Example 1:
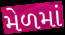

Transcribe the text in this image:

મેળમાં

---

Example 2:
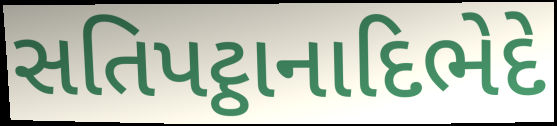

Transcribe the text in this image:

સતિપટ્ઠાનાદિભેદે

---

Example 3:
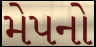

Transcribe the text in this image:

મેપનો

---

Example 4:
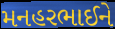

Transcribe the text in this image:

મનહરભાઈને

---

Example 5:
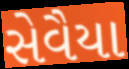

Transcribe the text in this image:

સેવૈયા